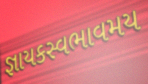
જ્ઞાયકસ્વભાવમય